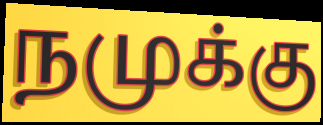
நமுக்கு